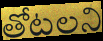
తోటలని